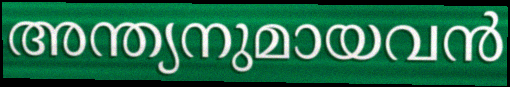
അന്ത്യനുമായവൻ